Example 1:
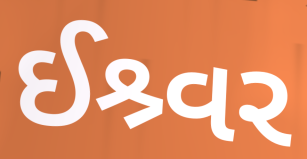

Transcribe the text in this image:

ઈશ્ર્વર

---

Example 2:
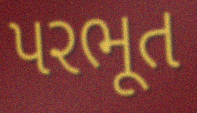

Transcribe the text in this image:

પરભૂત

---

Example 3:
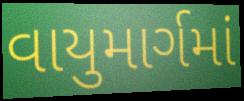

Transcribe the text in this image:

વાયુમાર્ગમાં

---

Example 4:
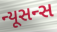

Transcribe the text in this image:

ન્યૂસન્સ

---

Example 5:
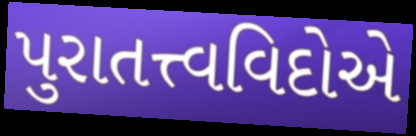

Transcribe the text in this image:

પુરાતત્ત્વવિદોએ